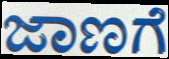
ಜಾಣಗೆ